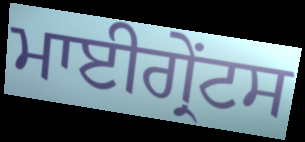
ਮਾਈਗ੍ਰੇਂਟਸ